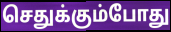
செதுக்கும்போது